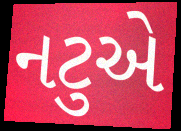
નટુએ